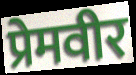
प्रेमवीर